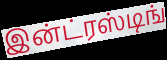
இன்ட்ரஸ்டிங்